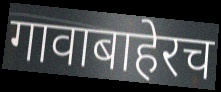
गावाबाहेरच